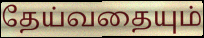
தேய்வதையும்